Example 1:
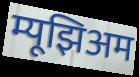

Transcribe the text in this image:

म्यूझिअम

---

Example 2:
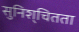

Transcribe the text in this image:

सुनिश्चितता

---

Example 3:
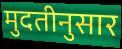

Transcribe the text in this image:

मुदतीनुसार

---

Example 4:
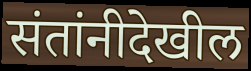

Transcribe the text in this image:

संतांनीदेखील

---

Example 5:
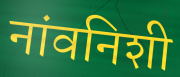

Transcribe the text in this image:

नांवनिशी